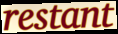
restant